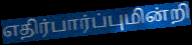
எதிர்பார்ப்புமின்றி